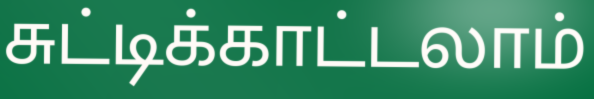
சுட்டிக்காட்டலாம்